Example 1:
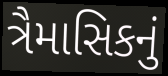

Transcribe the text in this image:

ત્રૈમાસિકનું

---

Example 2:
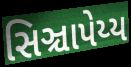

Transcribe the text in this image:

સિઞ્ચાપેય્ય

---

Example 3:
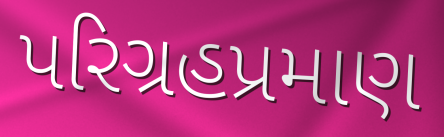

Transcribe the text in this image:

પરિગ્રહપ્રમાણ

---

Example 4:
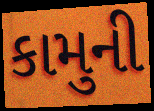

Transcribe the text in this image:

કામુની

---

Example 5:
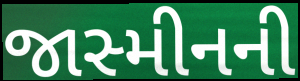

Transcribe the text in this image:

જાસ્મીનની